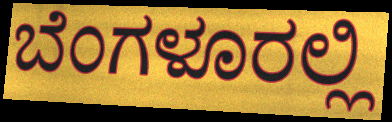
ಬೆಂಗಳೂರಲ್ಲಿ